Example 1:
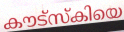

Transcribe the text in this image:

കൗട്സ്കിയെ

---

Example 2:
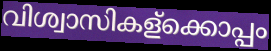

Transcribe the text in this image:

വിശ്വാസികള്ക്കൊപ്പം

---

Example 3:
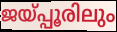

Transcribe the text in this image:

ജയ്പ്പൂരിലും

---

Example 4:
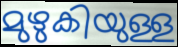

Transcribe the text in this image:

മുഴുകിയുള്ള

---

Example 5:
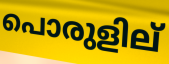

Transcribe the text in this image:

പൊരുളില്